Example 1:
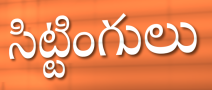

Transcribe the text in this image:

సిట్టింగులు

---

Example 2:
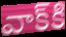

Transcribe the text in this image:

వాక్‌కి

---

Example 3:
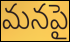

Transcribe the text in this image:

మనపై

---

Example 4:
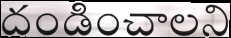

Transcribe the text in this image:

దండించాలని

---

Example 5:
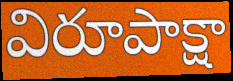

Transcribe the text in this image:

విరూపాక్షా